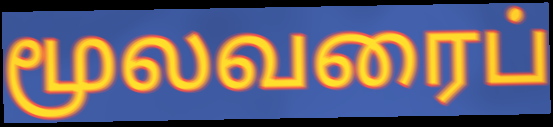
மூலவரைப்